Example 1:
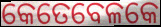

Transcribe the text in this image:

କେତେବେଳକେ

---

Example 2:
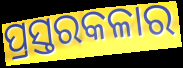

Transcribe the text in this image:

ପ୍ରସ୍ତରକଳାର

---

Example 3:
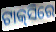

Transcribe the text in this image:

ଟାକ୍‌ସିରେ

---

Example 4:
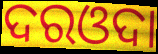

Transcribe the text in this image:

ଦରଓଦା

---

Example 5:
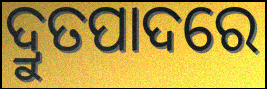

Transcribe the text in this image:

ଦ୍ରୁତପାଦରେ